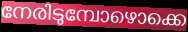
നേരിടുമ്പോഴൊക്കെ